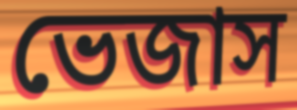
ভেজাস